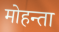
मोहन्ता